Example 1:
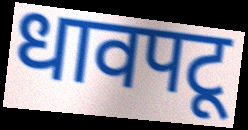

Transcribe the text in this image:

धावपटू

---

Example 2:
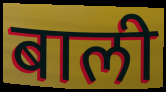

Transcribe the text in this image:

बाली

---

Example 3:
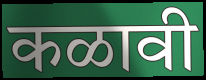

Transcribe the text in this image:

कळावी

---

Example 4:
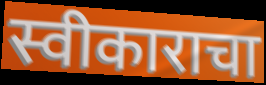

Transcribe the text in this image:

स्वीकाराचा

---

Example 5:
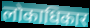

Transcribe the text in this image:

लोकाधिकार